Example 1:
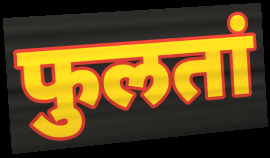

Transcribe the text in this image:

फुलतां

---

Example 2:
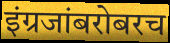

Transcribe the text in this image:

इंग्रजांबरोबरच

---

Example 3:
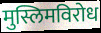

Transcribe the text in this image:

मुस्लिमविरोध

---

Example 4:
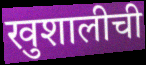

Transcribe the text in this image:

खुशालीची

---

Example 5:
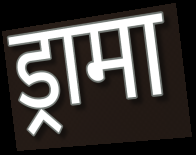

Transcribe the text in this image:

ड्रामा